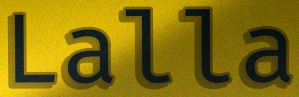
Lalla